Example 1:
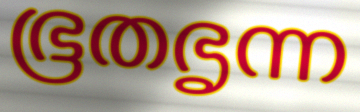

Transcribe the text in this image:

ഭൂതഭൃന്ന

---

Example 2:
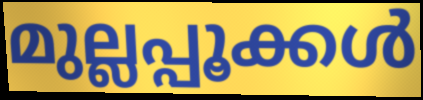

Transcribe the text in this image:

മുല്ലപ്പൂക്കൾ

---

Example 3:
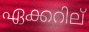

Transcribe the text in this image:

ഏക്കറില്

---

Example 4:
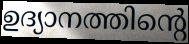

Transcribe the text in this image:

ഉദ്യാനത്തിന്റെ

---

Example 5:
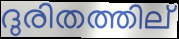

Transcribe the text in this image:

ദുരിതത്തില്